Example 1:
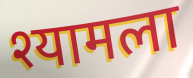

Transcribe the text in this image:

श्यामला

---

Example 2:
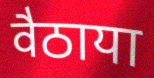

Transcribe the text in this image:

वैठाया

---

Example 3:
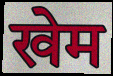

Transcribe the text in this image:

खेम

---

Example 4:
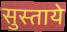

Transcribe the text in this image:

सुस्ताये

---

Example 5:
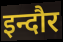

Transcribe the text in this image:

इन्दौर